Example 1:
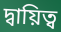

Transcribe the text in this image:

দ্বায়িত্ব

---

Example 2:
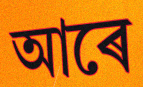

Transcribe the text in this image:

আৰে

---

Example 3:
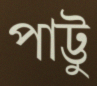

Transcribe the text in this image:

পাট্টু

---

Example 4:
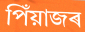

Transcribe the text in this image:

পিঁয়াজৰ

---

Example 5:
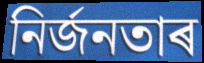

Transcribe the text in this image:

নিৰ্জনতাৰ